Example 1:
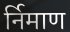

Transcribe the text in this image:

र्निमाण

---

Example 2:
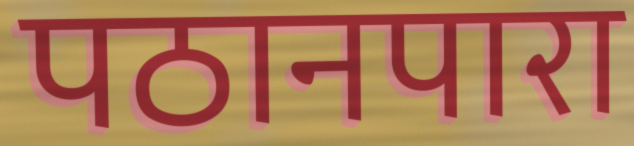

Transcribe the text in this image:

पठानपारा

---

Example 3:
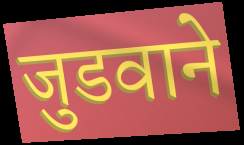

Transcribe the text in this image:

जुडवाने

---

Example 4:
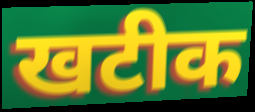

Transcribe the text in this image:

खटीक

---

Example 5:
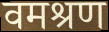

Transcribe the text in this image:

वमश्रण